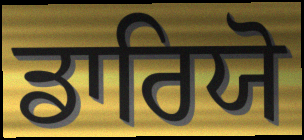
ਡਾਰਿਯੋ